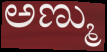
ಅಣ್ಮು